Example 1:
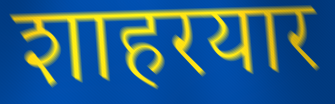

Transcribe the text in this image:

शाहरयार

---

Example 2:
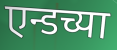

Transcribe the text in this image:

एन्डच्या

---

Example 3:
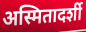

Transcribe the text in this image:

अस्मितादर्शी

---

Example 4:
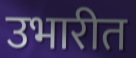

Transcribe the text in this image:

उभारीत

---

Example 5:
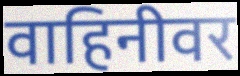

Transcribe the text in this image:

वाहिनीवर